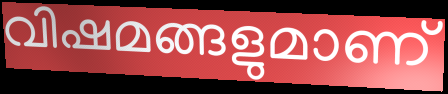
വിഷമങ്ങളുമാണ്